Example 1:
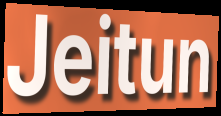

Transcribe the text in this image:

Jeitun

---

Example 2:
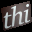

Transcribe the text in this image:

thi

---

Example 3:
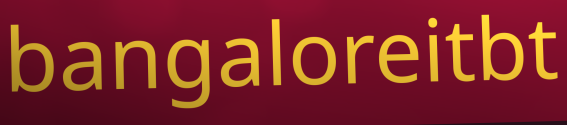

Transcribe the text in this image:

bangaloreitbt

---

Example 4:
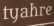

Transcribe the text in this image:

tyahre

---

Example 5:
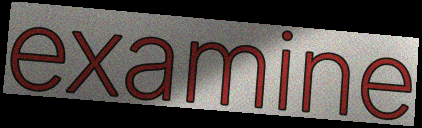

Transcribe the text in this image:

examine